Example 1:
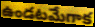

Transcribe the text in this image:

ఉండటమేగాక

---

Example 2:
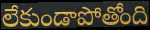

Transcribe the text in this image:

లేకుండాపోతోంది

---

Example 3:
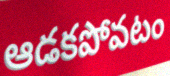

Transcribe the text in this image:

ఆడకపోవటం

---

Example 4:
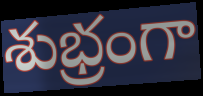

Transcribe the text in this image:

శుభ్రంగా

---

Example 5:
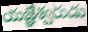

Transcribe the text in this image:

యజ్ఞేశ్వరుడు